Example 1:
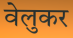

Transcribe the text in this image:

वेलुकर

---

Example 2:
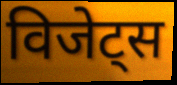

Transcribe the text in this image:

विजेट्स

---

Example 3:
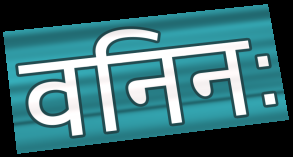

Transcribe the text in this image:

वनिनः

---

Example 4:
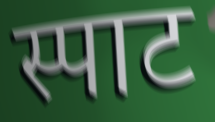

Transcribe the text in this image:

स्पाट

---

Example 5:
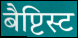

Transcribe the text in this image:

बैप्टिस्ट